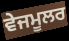
ਵੇਜਮੂਲਰ